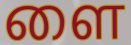
ளை